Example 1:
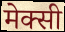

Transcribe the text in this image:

मेक्सी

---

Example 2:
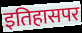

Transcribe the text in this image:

इतिहासपर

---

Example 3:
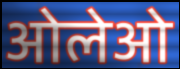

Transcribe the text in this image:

ओलेओ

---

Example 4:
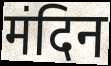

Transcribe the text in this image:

मंदिन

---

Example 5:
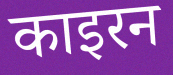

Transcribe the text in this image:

काइरन